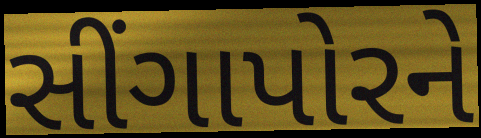
સીંગાપોરને